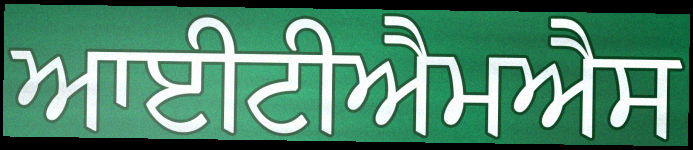
ਆਈਟੀਐਮਐਸ